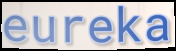
eureka